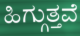
ಹಿಗ್ಗುತ್ತವೆ